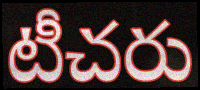
టీచరు